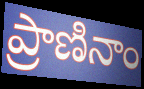
ప్రాణినాం